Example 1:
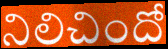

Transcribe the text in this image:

నిలిచిందో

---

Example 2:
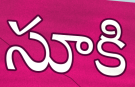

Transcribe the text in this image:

సూకి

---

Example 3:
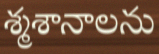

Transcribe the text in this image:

శ్మశానాలను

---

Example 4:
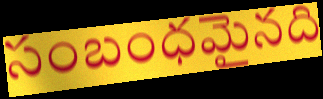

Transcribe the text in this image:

సంబంధమైనది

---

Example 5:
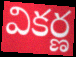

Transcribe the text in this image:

వికర్ణ